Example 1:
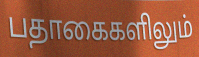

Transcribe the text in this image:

பதாகைகளிலும்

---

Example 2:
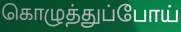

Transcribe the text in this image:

கொழுத்துப்போய்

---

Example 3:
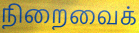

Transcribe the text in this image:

நிறைவைக்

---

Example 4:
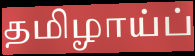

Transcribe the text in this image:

தமிழாய்ப்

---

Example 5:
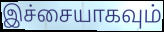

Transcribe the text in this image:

இச்சையாகவும்